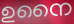
ഉനൈ